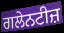
ਗਲੇਨਟੀਜ਼